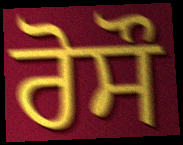
ਰੋਸੌ